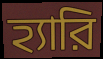
হ্যারি